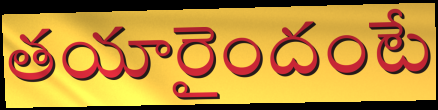
తయారైందంటే